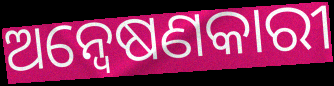
ଅନ୍ୱେଷଣକାରୀ